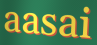
aasai